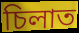
চিলাত